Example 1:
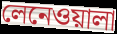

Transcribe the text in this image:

লেনেওয়ালা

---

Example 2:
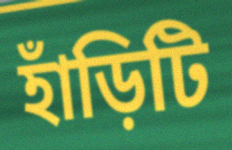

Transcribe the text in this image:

হাঁড়িটি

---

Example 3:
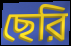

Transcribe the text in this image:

ছেরি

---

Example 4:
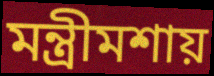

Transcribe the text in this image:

মন্ত্রীমশায়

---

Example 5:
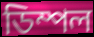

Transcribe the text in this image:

ডিম্পল